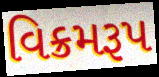
વિક્રમરૂપ